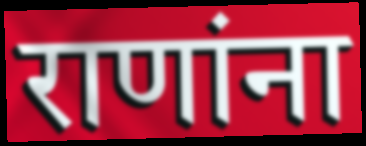
राणांना